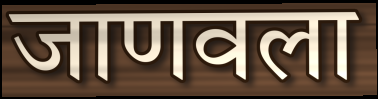
जाणवला